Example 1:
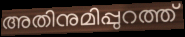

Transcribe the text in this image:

അതിനുമിപ്പുറത്ത്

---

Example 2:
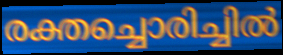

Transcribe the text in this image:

രക്തച്ചൊരിച്ചിൽ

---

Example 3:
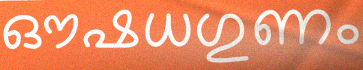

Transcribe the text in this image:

ഔഷധഗുണം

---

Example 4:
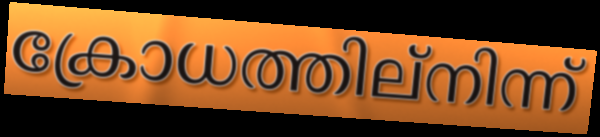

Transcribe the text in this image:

ക്രോധത്തില്നിന്ന്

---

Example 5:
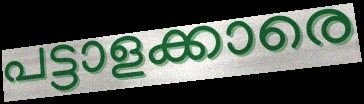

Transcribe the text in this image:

പട്ടാളക്കാരെ